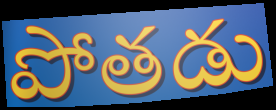
పోతడు